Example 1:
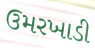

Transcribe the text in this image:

ઉમરખાડી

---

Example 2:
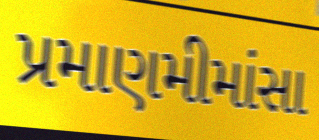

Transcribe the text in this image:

પ્રમાણમીમાંસા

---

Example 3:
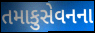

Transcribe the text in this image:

તમાકુસેવનના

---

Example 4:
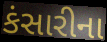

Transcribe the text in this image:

કંસારીના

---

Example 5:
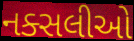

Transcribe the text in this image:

નક્સલીઓ